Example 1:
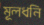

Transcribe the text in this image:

মূলধনি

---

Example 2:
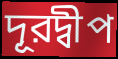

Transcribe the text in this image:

দূরদ্বীপ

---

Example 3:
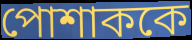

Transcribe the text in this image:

পোশাককে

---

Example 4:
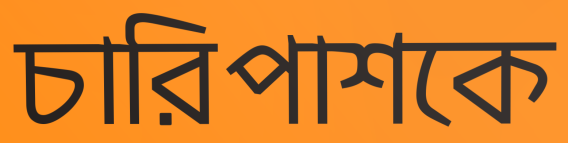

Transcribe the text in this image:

চারিপাশকে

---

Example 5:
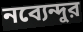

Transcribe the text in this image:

নব্যেন্দুর